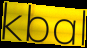
kbal